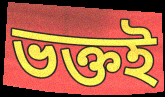
ভক্তই